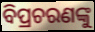
ବିପ୍ରଚରଣଙ୍କୁ